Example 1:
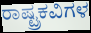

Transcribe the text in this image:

ರಾಷ್ಟ್ರಕವಿಗಳ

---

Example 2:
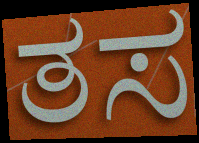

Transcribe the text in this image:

ತಸ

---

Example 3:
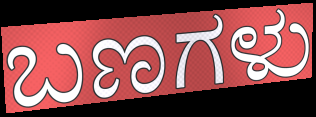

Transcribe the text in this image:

ಬಣಗಳು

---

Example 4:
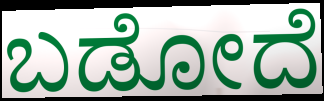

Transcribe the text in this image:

ಬಡೋದೆ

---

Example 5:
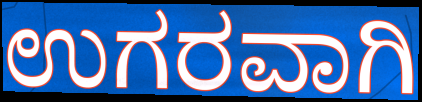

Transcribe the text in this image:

ಉಗರವಾಗಿ